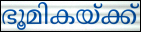
ഭൂമികയ്ക്ക്